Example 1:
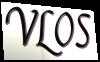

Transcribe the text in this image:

VLOS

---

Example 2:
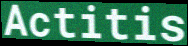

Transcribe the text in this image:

Actitis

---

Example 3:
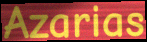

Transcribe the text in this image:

Azarias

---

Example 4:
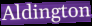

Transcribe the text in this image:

Aldington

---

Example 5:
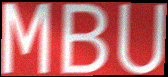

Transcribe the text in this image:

MBU